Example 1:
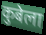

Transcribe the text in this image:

कुबेला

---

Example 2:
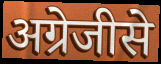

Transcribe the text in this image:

अग्रेजीसे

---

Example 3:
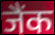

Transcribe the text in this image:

जैंक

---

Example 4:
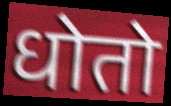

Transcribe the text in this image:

धोतो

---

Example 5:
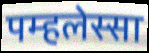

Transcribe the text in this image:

पम्हलेस्सा